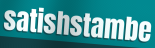
satishstambe